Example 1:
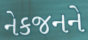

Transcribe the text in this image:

નેકજનને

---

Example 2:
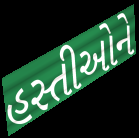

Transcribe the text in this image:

હસ્તીઓને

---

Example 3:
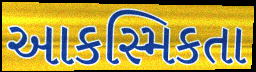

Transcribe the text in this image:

આકસ્મિકતા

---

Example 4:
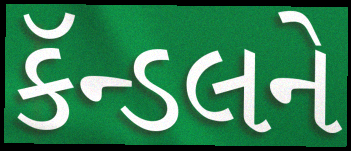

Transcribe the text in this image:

કૅન્ડલને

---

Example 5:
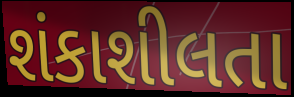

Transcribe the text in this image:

શંકાશીલતા